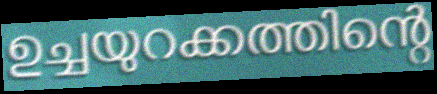
ഉച്ചയുറക്കത്തിന്റെ